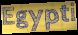
Egypti